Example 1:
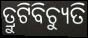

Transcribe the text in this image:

ତ୍ରୁଟିବିଚ୍ୟୁତି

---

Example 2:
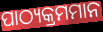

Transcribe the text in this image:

ପାଠ୍ୟକ୍ରମମାନ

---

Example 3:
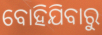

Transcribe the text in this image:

ବୋହିଯିବାରୁ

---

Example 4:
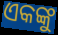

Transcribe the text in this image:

ଏକଙ୍କୁ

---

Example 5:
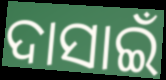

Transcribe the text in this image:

ଦାସାଇଁ